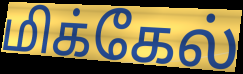
மிக்கேல்